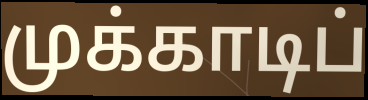
முக்காடிப்